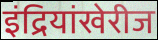
इंद्रियांखेरीज